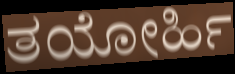
ತಯೋರ್ಹಿ